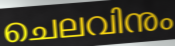
ചെലവിനും